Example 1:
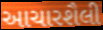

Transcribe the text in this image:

આચારશૈલી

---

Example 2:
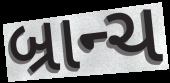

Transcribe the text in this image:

બ્રાન્ચ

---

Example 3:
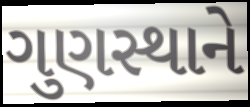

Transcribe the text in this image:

ગુણસ્થાને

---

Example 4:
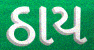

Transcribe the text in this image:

ઠાય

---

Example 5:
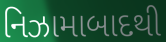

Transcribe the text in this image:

નિઝામાબાદથી